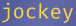
jockey